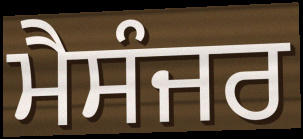
ਮੈਸੰਜਰ